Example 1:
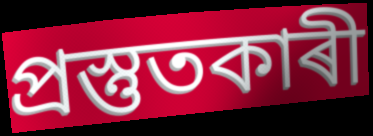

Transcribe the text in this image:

প্ৰস্তুতকাৰী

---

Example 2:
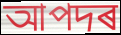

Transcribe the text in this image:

আপদৰ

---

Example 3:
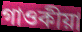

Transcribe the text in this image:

গাওকীয়া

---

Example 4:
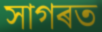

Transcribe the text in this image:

সাগৰত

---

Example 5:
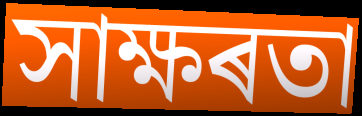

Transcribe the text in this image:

সাক্ষৰতা